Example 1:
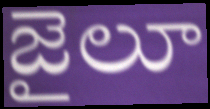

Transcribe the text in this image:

జైలూ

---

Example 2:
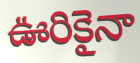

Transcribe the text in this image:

ఊరికైనా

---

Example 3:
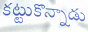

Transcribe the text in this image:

కట్టుకొన్నాడు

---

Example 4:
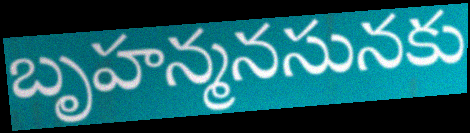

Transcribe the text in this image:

బృహన్మనసునకు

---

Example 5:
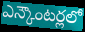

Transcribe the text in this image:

ఎన్కౌంటర్లలో